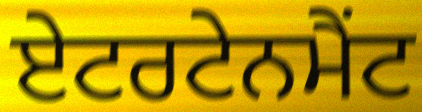
ਏਟਰਟੇਨਮੈਂਟ